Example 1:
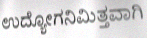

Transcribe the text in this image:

ಉದ್ಯೋಗನಿಮಿತ್ತವಾಗಿ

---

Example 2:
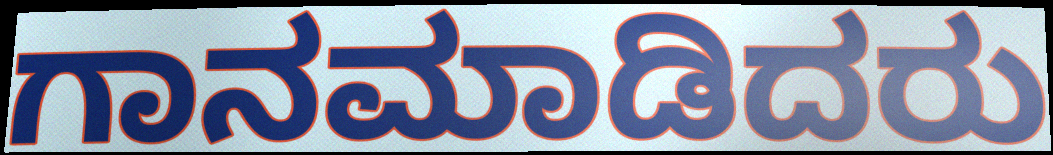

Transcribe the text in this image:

ಗಾನಮಾಡಿದರು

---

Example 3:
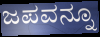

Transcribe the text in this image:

ಜಪವನ್ನೂ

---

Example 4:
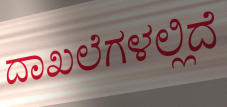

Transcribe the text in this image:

ದಾಖಲೆಗಳಲ್ಲಿದೆ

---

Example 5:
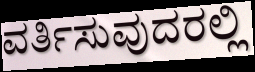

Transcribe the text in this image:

ವರ್ತಿಸುವುದರಲ್ಲಿ